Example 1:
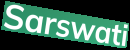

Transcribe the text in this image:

Sarswati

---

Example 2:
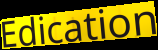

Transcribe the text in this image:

Edication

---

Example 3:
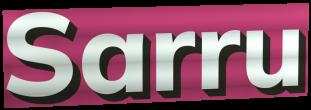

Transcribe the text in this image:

Sarru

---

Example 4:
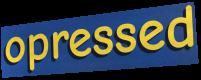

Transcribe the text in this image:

opressed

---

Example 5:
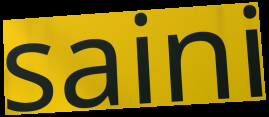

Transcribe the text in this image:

saini